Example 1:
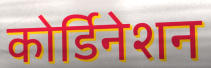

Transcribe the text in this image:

कोर्डिनेशन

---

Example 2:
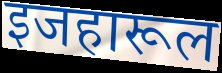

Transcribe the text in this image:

इजहारूल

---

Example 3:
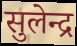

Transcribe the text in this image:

सुलेन्द्र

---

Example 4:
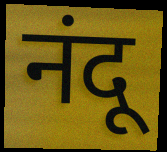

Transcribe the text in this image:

नंदू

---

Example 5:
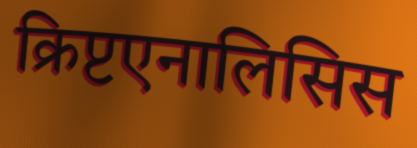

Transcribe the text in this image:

क्रिप्टएनालिसिस